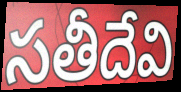
సతీదేవి